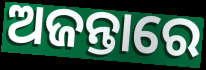
ଅଜନ୍ତାରେ